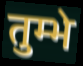
तुम्भे